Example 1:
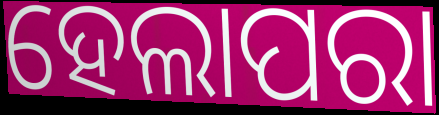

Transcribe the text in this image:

ହେଲାପରା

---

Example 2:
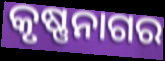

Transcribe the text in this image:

କୃଷ୍ଣନାଗର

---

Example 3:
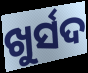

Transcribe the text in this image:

ଖୁର୍ସଦ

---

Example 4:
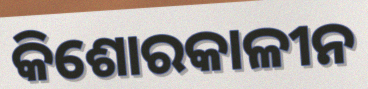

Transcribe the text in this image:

କିଶୋରକାଳୀନ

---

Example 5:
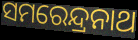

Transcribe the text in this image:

ସମରେନ୍ଦ୍ରନାଥ